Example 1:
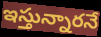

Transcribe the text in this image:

ఇస్తున్నారనే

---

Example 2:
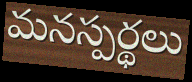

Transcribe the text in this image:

మనస్పర్థలు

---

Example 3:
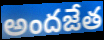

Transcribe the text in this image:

అందజేత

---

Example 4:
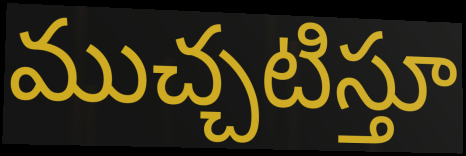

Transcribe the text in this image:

ముచ్చటిస్తూ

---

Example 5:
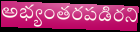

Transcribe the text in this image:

అభ్యంతరపడిరని